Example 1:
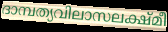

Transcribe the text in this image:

ദാമ്പത്യവിലാസലക്ഷ്മീ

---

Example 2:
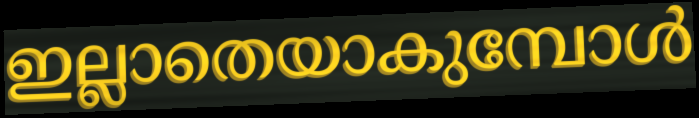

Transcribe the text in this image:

ഇല്ലാതെയാകുമ്പോൾ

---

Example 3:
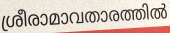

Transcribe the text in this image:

ശ്രീരാമാവതാരത്തിൽ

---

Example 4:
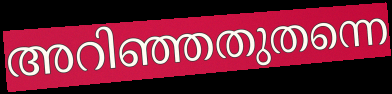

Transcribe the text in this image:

അറിഞ്ഞതുതന്നെ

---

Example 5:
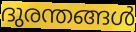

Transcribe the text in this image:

ദുരന്തങ്ങൾ